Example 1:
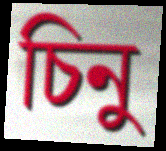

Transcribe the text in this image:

চিনু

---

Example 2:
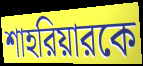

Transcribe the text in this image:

শাহরিয়ারকে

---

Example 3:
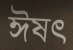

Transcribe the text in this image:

ঈষত্‍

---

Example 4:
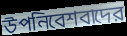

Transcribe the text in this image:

উপনিবেশবাদের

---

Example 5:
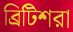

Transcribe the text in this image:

ব্রিটিশরা